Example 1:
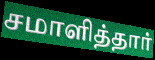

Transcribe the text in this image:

சமாளித்தார்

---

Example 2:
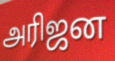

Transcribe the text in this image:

அரிஜன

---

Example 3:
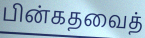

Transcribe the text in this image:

பின்கதவைத்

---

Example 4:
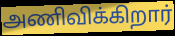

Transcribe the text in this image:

அணிவிக்கிறார்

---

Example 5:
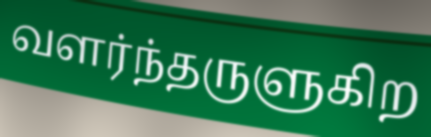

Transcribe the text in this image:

வளர்ந்தருளுகிற